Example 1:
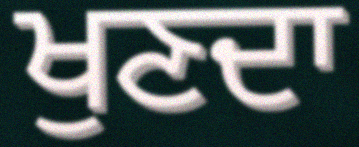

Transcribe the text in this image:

ਖੁਣਦਾ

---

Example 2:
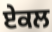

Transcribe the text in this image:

ਏਕਲ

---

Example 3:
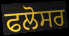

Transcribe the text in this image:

ਫਲੋਸਰ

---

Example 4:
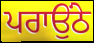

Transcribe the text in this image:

ਪਰਾਉਂਠੇ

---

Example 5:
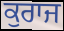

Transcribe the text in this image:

ਕੁਰਾਜ